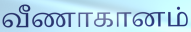
வீணாகானம்